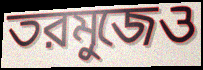
তরমুজেও